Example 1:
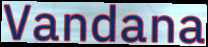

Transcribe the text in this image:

Vandana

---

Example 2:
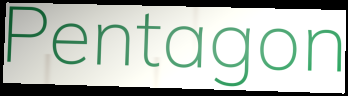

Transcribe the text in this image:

Pentagon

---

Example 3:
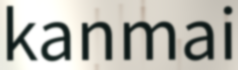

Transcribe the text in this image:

kanmai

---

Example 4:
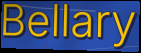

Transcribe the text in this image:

Bellary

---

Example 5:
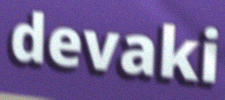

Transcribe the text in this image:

devaki